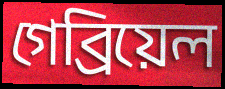
গেব্ৰিয়েল